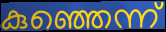
കുഞ്ഞെന്ന്